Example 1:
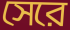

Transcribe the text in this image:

সেরে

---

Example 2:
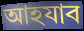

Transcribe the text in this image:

আহযাব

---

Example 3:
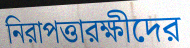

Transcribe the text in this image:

নিরাপত্তারক্ষীদের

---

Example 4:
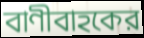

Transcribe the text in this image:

বাণীবাহকের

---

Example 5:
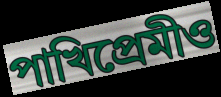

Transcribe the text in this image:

পাখিপ্রেমীও